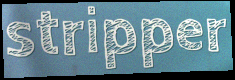
stripper